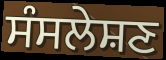
ਸੰਸਲੇਸ਼ਣ